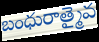
బంధురాత్మైవ